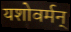
यशोवर्मन्